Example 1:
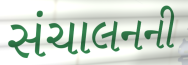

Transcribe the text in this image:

સંચાલનની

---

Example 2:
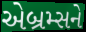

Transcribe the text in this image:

એબ્રમ્સને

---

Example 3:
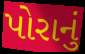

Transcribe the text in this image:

પોરાનું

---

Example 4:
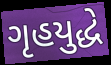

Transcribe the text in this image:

ગૃહયુદ્ધે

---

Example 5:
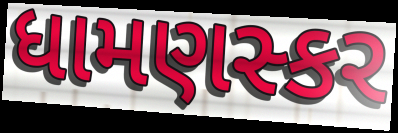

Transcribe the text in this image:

ધામણસ્કર